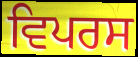
ਵਿਪਰਸ